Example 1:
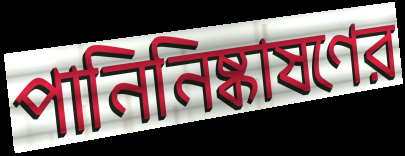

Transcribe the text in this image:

পানিনিষ্কাষণের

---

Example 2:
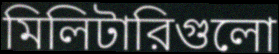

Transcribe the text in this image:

মিলিটারিগুলো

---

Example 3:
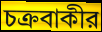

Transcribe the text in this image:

চক্রবাকীর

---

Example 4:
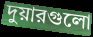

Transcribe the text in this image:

দুয়ারগুলো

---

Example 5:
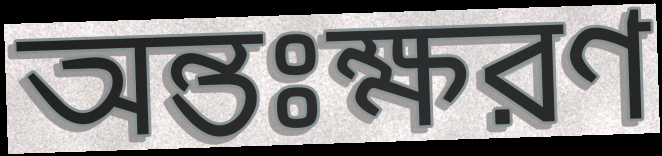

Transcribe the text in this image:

অন্তঃক্ষরণ